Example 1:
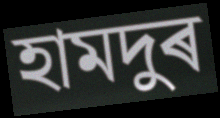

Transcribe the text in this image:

হামদুৰ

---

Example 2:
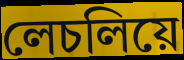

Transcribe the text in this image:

লেচলিয়ে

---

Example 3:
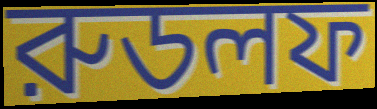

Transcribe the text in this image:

ৰুডলফ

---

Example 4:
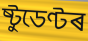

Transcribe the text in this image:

ষ্টুডেণ্টৰ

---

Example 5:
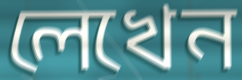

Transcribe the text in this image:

লেখেন